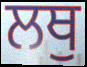
ਲਥੁ